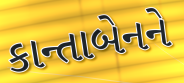
કાન્તાબેનને